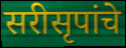
सरीसृपांचे